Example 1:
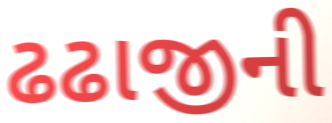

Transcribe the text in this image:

ઢઢાજીની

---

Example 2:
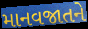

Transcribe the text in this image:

માનવજાતને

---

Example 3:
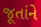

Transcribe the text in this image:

જૂતાંને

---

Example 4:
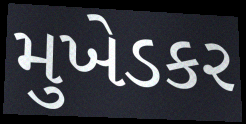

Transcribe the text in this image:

મુખેડકર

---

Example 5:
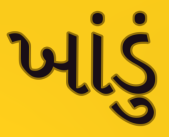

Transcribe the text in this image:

ખાંડું